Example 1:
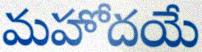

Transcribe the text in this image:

మహోదయే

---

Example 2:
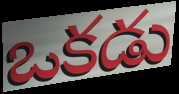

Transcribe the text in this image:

ఒకడు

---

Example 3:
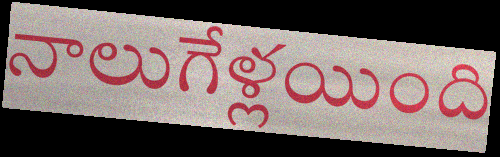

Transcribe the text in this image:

నాలుగేళ్లయింది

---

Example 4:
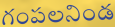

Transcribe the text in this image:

గంపలనిండ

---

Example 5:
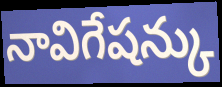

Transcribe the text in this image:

నావిగేషన్కు